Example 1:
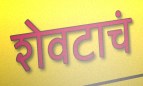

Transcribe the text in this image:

शेवटाचं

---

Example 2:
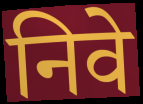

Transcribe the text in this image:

निवे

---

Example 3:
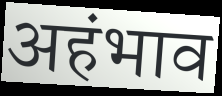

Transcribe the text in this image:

अहंभाव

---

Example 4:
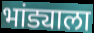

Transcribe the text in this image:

भांड्याला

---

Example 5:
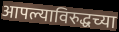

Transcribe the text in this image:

आपल्याविरुद्धच्या